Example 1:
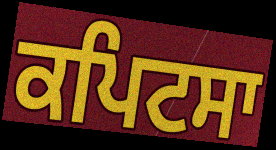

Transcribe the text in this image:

ਕਪਿਟਸਾ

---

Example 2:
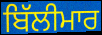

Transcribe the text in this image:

ਬਿੱਲੀਮਾਰ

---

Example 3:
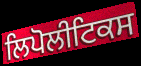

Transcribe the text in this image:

ਲਿਪੋਲੀਟਿਕਸ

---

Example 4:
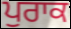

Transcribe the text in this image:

ਪੁਰਾਕ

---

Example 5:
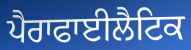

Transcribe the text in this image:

ਪੈਰਾਫਾਈਲੈਟਿਕ